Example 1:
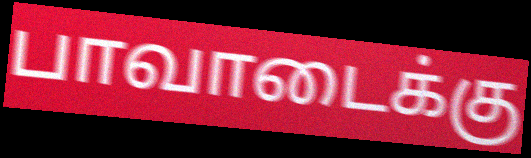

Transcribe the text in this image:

பாவாடைக்கு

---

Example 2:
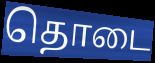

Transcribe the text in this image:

தொடை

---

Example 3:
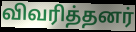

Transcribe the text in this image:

விவரித்தனர்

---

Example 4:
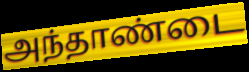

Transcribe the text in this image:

அந்தாண்டை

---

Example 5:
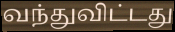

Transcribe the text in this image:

வந்துவிட்டது